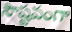
సౌష్టవంగా